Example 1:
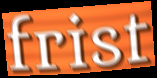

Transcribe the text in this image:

frist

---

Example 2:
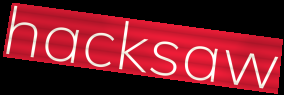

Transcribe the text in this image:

hacksaw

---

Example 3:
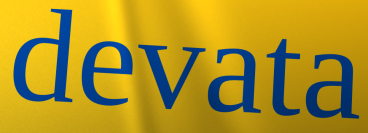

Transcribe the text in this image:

devata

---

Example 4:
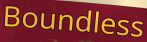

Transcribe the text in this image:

Boundless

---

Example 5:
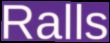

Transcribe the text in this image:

Ralls